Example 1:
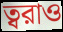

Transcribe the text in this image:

ত্বরাও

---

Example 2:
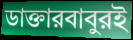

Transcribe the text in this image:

ডাক্তারবাবুরই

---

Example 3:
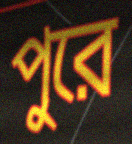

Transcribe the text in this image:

পুরে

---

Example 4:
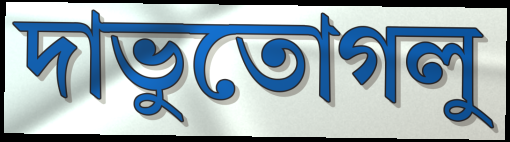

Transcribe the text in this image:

দাভুতোগলু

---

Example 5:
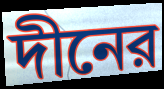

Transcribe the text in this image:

দীনের